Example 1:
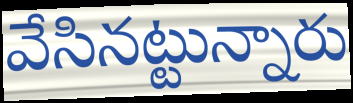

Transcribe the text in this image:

వేసినట్టున్నారు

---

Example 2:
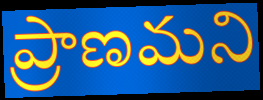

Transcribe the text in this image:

ప్రాణమని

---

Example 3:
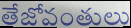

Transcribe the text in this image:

తేజోవంతులు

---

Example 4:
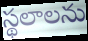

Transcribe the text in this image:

స్థలాలను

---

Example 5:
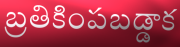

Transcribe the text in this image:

బ్రతికింపబడ్డాక